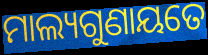
ମାଲ୍ୟଗୁଣାୟତେ